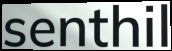
senthil